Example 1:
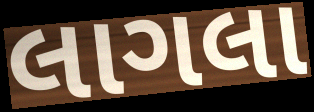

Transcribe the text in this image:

લાગલા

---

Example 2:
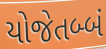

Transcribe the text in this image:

યોજેતબ્બં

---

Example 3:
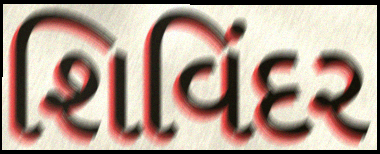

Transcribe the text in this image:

શિવિંદર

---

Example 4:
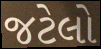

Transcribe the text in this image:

જટેલો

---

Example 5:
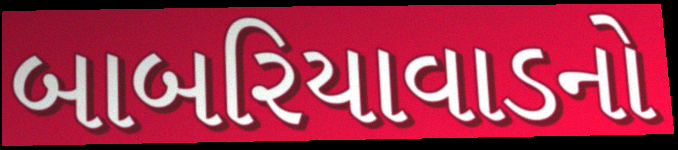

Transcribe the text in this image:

બાબરિયાવાડનો